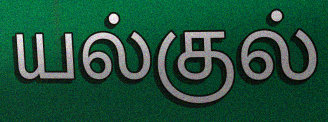
யல்குல்